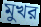
মুখর